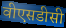
वीएसडीसी